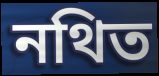
নথিত